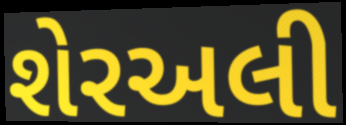
શેરઅલી